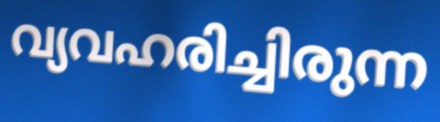
വ്യവഹരിച്ചിരുന്ന